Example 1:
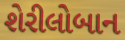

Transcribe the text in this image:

શેરીલોબાન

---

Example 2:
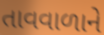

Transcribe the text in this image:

તાવવાળાને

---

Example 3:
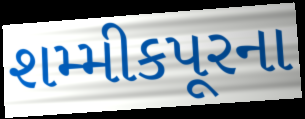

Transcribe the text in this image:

શમ્મીકપૂરના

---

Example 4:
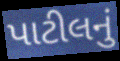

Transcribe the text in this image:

પાટીલનું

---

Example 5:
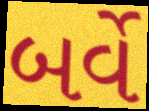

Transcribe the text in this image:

બર્વે